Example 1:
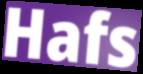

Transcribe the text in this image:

Hafs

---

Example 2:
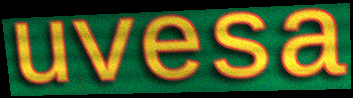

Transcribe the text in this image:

uvesa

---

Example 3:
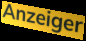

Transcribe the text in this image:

Anzeiger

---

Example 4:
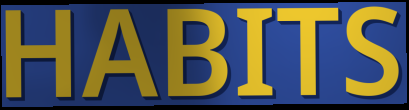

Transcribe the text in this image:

HABITS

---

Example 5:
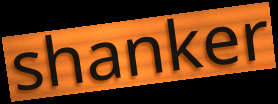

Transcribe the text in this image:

shanker